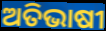
ଅତିଭାଷୀ